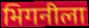
भिगनीला